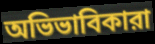
অভিভাবিকারা